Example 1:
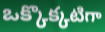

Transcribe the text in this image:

ఒక్కొక్కటిగా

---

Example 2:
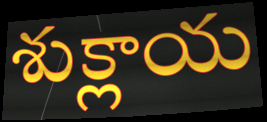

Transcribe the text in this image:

శుక్లాయ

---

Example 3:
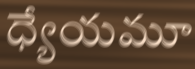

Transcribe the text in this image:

ధ్యేయమూ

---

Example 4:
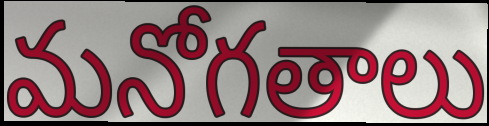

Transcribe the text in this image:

మనోగతాలు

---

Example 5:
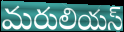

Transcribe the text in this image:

మరులియస్